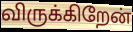
விருக்கிறேன்